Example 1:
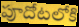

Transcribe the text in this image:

పూదోటలోకి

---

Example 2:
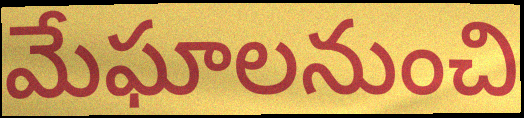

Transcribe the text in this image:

మేఘాలనుంచి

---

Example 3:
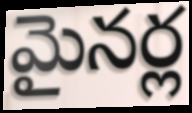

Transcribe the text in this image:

మైనర్ల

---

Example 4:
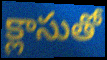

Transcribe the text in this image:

క్లాసుతో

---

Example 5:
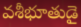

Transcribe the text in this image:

వశీభూతుడై